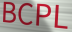
BCPL